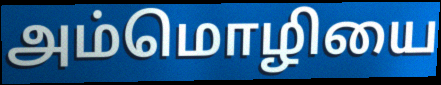
அம்மொழியை